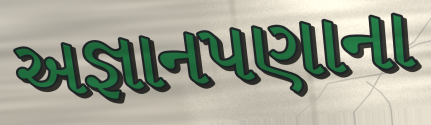
અજ્ઞાનપણાના